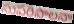
సుపరిపాలనా